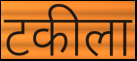
टकीला